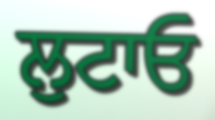
ਲੁਟਾਓ